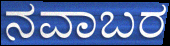
ನವಾಬರ